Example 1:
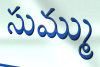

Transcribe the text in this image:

సుమ్ము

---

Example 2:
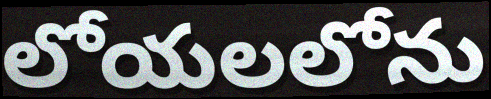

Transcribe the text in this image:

లోయలలోను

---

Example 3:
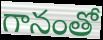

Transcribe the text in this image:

గానంతో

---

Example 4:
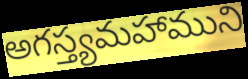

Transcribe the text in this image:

అగస్త్యమహాముని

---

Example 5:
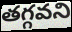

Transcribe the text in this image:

తగ్గవని